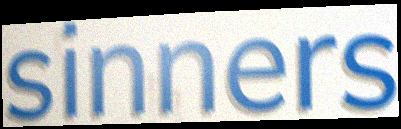
sinners